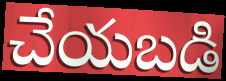
చేయబడి